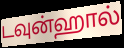
டவுன்ஹால்